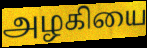
அழகியை